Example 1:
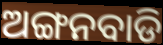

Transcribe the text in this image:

ଅଙ୍ଗନବାଡି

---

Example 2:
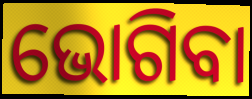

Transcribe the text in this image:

ଭୋଗିବା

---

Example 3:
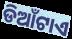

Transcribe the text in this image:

ଡିଆଁଟାଏ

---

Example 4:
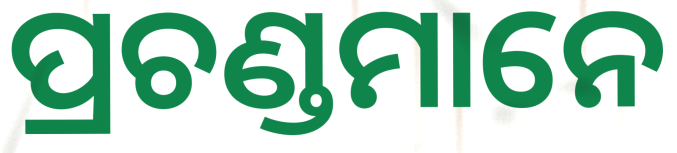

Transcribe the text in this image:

ପ୍ରଚଣ୍ଡମାନେ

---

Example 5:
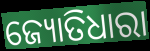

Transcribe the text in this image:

ଜ୍ଯୋତିଧାରା